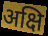
अक्षि